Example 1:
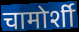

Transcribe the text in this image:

चामोर्शी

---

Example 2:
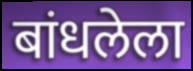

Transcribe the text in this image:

बांधलेला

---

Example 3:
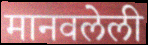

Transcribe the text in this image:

मानवलेली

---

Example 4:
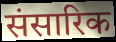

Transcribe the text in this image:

संसारिक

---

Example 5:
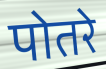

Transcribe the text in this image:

पोतरे